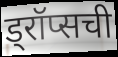
ड्रॉप्सची